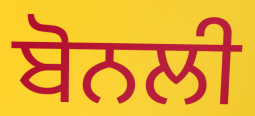
ਬੋਨਲੀ